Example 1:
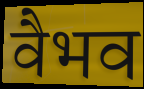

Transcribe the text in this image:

वैभव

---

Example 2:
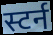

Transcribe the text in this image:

स्टर्न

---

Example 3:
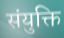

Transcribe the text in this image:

संयुक्ति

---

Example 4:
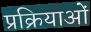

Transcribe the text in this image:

प्रक्रियाओं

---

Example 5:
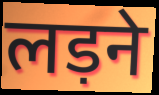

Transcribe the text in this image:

लड़ने